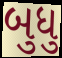
બુધુ